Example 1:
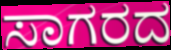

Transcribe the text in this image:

ಸಾಗರದ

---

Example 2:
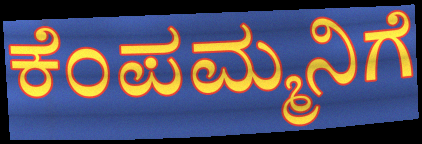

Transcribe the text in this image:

ಕೆಂಪಮ್ಮನಿಗೆ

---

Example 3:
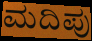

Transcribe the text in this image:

ಮದಿಪು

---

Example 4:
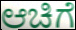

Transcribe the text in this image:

ಆಚಿಗೆ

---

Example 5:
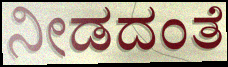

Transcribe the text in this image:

ನೀಡದಂತೆ